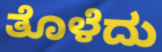
ತೊಳೆದು